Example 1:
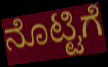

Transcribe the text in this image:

ನೊಟ್ಟಿಗೆ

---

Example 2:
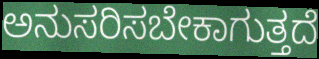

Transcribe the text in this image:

ಅನುಸರಿಸಬೇಕಾಗುತ್ತದೆ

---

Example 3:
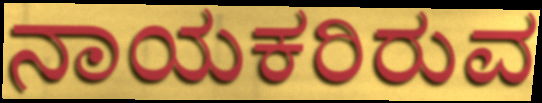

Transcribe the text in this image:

ನಾಯಕರಿರುವ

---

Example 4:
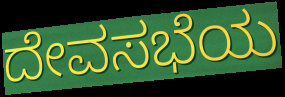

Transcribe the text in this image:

ದೇವಸಭೆಯ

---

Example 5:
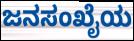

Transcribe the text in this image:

ಜನಸಂಖೈಯ